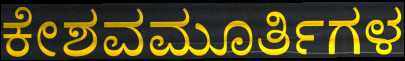
ಕೇಶವಮೂರ್ತಿಗಳ